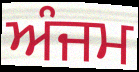
ਅੰਜਮ